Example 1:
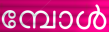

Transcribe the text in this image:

മ്പോൾ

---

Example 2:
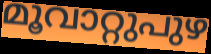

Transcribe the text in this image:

മൂവാറ്റുപുഴ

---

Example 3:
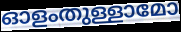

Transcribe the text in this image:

ഓളംതുള്ളാമോ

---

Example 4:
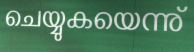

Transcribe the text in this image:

ചെയ്യുകയെന്നു്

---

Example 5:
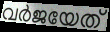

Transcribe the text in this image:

വർജയേത്